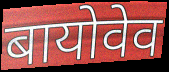
बायोवेव